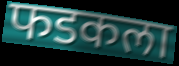
फडकला